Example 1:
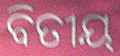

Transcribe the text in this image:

ବିତୀୟ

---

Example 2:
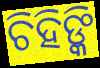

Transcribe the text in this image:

ଚିହିଙ୍କି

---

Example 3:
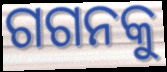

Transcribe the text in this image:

ଗଗନକୁ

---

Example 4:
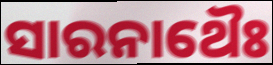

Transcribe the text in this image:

ସାରନାଥୈଃ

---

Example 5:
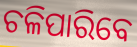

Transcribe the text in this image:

ଚଳିପାରିବେ